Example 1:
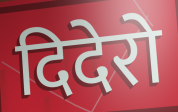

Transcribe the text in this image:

दिदेरो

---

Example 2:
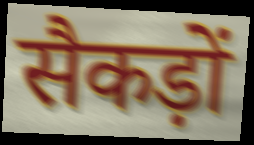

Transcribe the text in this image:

सैकड़ों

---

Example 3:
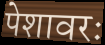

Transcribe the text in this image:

पेशावरः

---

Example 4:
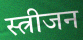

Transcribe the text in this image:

स्त्रीजन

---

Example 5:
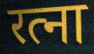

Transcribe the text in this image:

रत्ना